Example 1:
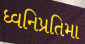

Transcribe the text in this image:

ધ્વનિપ્રતિમા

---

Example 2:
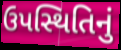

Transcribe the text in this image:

ઉપસ્થિતિનું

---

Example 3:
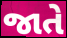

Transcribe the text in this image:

જાતે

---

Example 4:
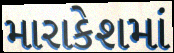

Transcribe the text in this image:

મારાકેશમાં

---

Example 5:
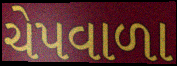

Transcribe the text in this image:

ચેપવાળા